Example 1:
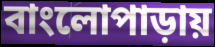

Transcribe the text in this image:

বাংলোপাড়ায়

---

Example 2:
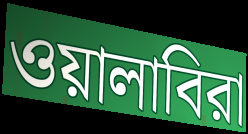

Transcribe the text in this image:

ওয়ালাবিরা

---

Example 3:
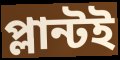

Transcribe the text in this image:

প্লান্টই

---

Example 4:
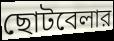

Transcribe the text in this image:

ছোটবেলার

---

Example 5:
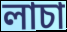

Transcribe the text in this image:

লাচা